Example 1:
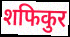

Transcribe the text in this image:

शफिकुर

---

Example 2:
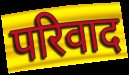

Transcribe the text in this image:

परिवाद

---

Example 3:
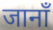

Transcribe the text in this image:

जानाँ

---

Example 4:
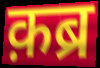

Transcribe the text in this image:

क़ब्र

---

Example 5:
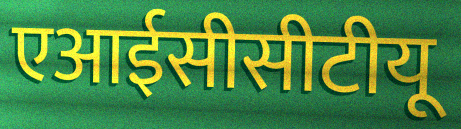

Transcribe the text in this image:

एआईसीसीटीयू